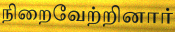
நிறைவேற்றினார்